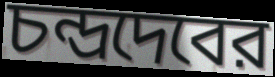
চন্দ্রদেবের